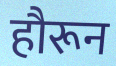
हौरून